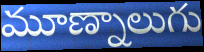
మూణ్నాలుగు